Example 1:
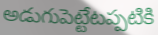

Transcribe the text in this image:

అడుగుపెట్టేటప్పటికి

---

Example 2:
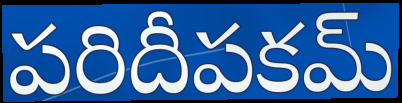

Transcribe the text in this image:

పరిదీపకమ్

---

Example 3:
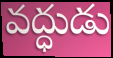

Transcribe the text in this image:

వద్ధుడు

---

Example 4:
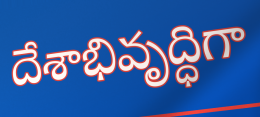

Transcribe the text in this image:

దేశాభివృద్ధిగా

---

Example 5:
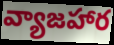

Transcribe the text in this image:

వ్యాజహార